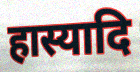
हास्यादि